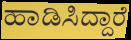
ಹಾಡಿಸಿದ್ದಾರೆ